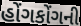
હોંગકોંગની